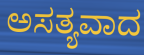
ಅಸತ್ಯವಾದ